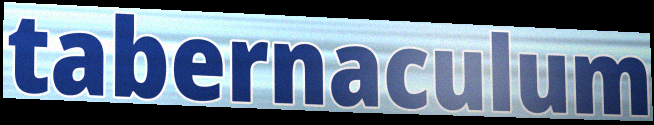
tabernaculum